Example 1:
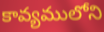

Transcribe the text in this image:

కావ్యములోని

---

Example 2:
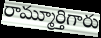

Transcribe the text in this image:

రామ్మూర్తిగారు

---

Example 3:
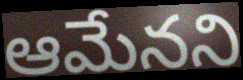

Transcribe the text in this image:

ఆమేనని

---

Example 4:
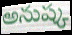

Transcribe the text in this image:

అనుష్క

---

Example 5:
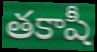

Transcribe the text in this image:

తకాషీ